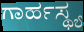
ಗಾರ್ಹಸ್ಥ್ಯ